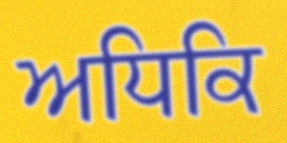
ਅਧਿਕਿ